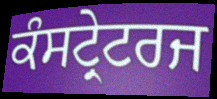
ਕੰਸਟ੍ਰੇਟਰਜ